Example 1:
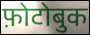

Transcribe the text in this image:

फ़ोटोबुक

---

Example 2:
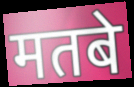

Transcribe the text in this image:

मतबे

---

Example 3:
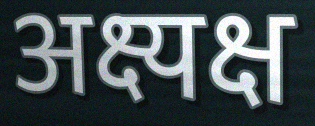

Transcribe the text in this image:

अक्ष्यक्ष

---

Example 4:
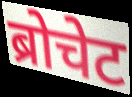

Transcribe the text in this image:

ब्रोचेट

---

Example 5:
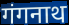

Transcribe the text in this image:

गंगनाथ